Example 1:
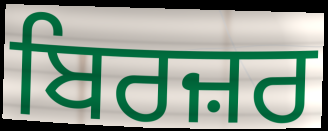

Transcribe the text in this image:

ਬਿਰਜ਼ਰ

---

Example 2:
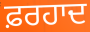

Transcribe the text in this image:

ਫ਼ਰਹਾਦ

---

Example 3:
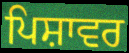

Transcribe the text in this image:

ਪਿਸ਼ਾਵਰ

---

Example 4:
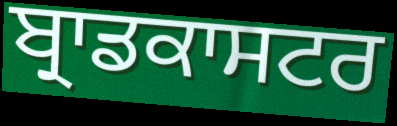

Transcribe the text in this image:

ਬ੍ਰਾਡਕਾਸਟਰ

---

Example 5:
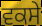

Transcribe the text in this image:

ਵਕਸੇ